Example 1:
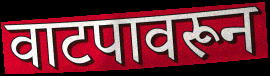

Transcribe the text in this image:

वाटपावरून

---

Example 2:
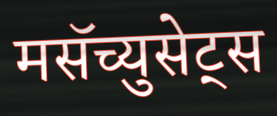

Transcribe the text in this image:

मसॅच्युसेट्स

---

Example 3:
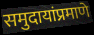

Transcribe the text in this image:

समुदायांप्रमाणे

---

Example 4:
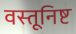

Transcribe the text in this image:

वस्तूनिष्ट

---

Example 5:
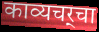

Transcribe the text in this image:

काव्यचर्चा